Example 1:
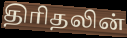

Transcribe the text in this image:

திரிதலின்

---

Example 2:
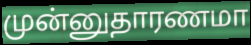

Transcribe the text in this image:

முன்னுதாரணமா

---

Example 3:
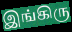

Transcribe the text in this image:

இங்கிரு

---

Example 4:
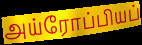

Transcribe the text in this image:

அய்ரோப்பியப்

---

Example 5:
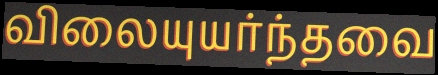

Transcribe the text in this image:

விலையுயர்ந்தவை